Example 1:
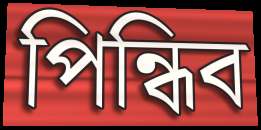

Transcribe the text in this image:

পিন্ধিব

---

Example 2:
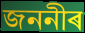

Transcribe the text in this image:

জননীৰ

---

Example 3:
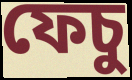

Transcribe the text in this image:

ফেচু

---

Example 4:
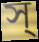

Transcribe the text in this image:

স্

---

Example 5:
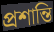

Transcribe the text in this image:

প্ৰশান্তি